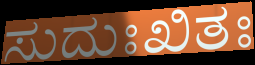
ಸುದುಃಖಿತಃ